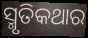
ସ୍ମୃତିକଥାର